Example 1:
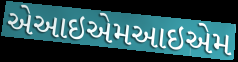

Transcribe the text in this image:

એઆઇએમઆઇએમ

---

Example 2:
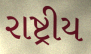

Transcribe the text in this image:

રાષ્ટ્રીય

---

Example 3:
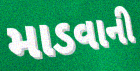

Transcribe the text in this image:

માડવાની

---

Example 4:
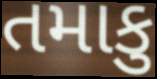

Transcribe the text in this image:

તમાકુ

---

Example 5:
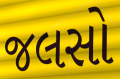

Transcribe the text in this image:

જલસો